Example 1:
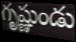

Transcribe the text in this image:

గృష్ణుండు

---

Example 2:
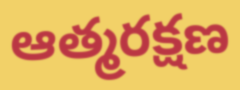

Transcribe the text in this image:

ఆత్మరక్షణ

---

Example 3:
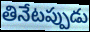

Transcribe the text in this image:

తినేటప్పుడు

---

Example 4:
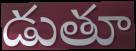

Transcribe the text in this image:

డుతూ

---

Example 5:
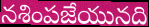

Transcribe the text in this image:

నశింపజేయునది